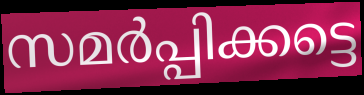
സമർപ്പിക്കട്ടെ